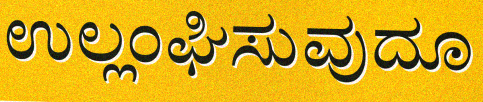
ಉಲ್ಲಂಘಿಸುವುದೂ